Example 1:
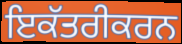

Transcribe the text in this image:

ਇਕੱਤਰੀਕਰਨ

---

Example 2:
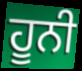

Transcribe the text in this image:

ਹੂਨੀ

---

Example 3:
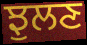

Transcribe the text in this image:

ਝੁਲਣ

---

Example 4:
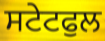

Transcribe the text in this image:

ਸਟੇਟਫੁਲ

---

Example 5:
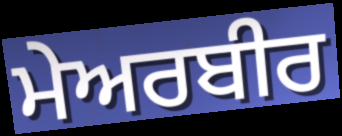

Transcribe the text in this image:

ਮੇਅਰਬੀਰ